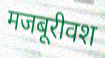
मजबूरीवश